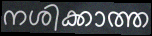
നശിക്കാത്ത